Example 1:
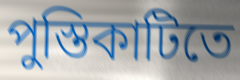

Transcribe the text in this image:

পুস্তিকাটিতে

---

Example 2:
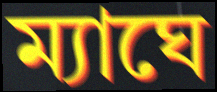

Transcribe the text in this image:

ম্যাঘে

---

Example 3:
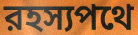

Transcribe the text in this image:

রহস্যপথে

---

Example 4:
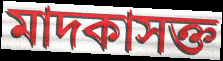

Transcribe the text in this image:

মাদকাসক্ত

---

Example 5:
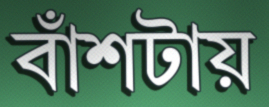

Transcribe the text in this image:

বাঁশটায়